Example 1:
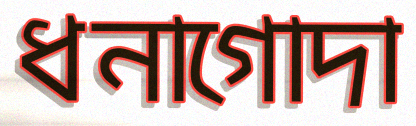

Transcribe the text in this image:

ধনাগোদা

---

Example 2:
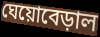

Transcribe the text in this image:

ঘেয়োবেড়াল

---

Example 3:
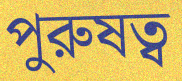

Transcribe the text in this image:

পুরুষত্ব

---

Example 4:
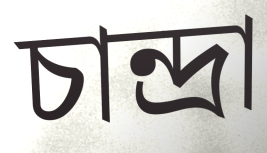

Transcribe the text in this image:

চান্দ্রা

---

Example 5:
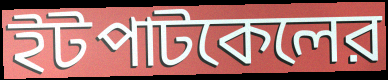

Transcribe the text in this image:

ইটপাটকেলের